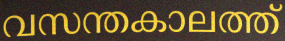
വസന്തകാലത്ത്